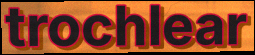
trochlear